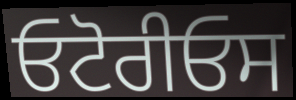
ਓਟੋਰੀਓਸ